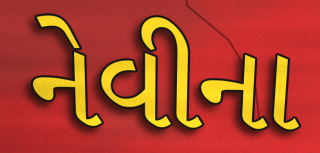
નેવીના